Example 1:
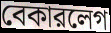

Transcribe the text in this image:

বেকারলেগ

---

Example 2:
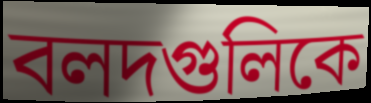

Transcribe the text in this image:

বলদগুলিকে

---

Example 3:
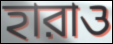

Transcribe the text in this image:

হারাও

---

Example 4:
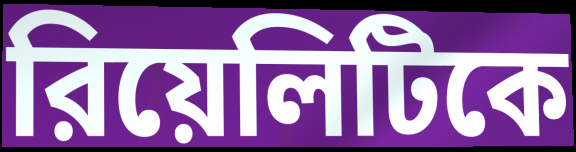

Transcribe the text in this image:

রিয়েলিটিকে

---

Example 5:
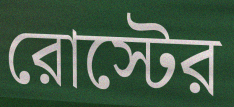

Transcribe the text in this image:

রোস্টের